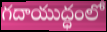
గదాయుద్ధంలో